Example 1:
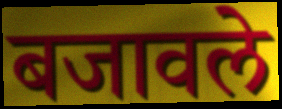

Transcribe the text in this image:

बजावले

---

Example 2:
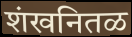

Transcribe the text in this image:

शंखनितळ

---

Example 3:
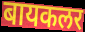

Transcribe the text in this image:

बायकलर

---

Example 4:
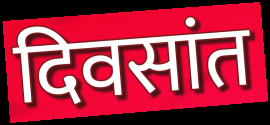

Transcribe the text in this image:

दिवसांत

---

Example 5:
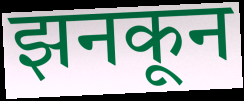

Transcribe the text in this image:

झनकून